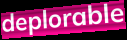
deplorable